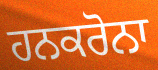
ਹਨਕਰੋਨਾ